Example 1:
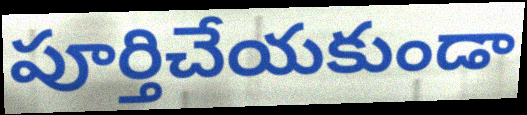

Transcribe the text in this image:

పూర్తిచేయకుండా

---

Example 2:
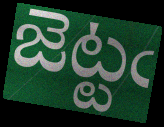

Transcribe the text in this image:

జెట్టఁ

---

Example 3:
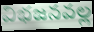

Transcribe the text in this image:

విభజనవల్ల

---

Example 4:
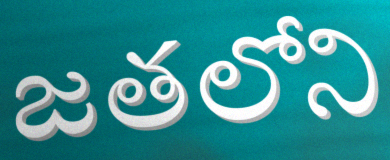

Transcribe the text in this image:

జతలోని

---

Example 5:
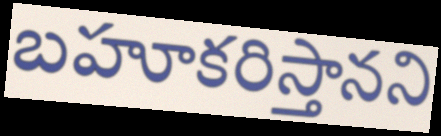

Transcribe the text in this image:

బహూకరిస్తానని